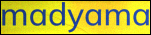
madyama